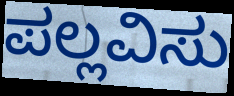
ಪಲ್ಲವಿಸು